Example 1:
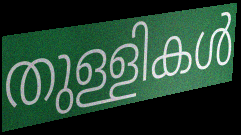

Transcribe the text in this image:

തുള്ളികൾ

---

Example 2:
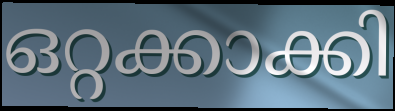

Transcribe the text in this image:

ഒറ്റക്കാക്കി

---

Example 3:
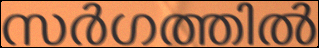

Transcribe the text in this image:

സർഗത്തിൽ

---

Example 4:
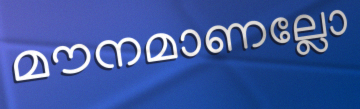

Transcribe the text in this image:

മൗനമാണല്ലോ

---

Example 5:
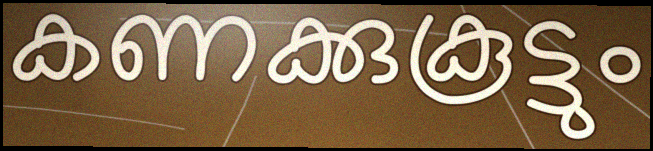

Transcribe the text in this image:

കണക്കുകൂട്ടും